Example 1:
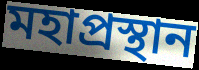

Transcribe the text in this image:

মহাপ্রস্থান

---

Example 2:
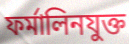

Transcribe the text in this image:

ফর্মালিনযুক্ত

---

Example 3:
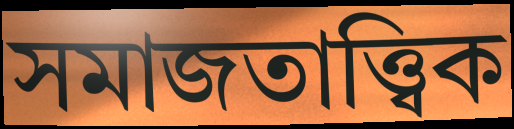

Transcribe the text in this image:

সমাজতাত্ত্বিক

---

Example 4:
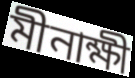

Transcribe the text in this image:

মীনাক্ষী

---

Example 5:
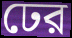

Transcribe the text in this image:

ঢের